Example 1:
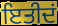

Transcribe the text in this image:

ਇਤੀਦਂ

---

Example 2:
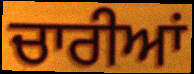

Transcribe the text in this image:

ਚਾਰੀਆਂ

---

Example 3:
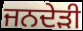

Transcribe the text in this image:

ਜਨਦੇੜੀ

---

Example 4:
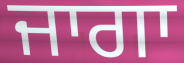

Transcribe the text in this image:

ਜਾਗਾ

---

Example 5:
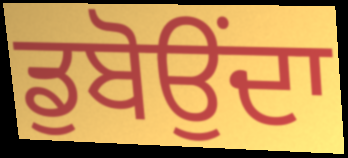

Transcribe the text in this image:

ਡੁਬੋਉਂਦਾ